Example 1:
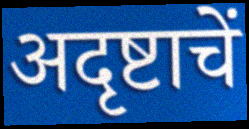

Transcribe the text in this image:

अदृष्टाचें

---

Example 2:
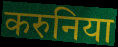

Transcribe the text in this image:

करुनिया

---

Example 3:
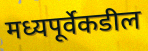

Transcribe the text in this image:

मध्यपूर्वेकडील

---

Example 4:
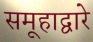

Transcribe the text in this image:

समूहाद्वारे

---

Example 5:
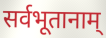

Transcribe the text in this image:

सर्वभूतानाम्